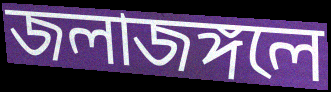
জলাজঙ্গলে